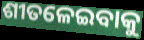
ଶୀତଳେଇବାକୁ